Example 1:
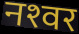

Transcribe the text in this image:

नश्वर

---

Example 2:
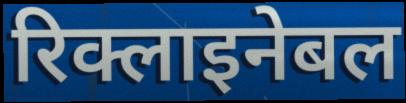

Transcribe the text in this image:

रिक्लाइनेबल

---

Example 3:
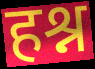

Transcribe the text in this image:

हश्न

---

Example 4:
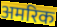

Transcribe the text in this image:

अमरिक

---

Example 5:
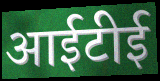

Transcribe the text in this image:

आईटीई